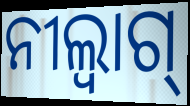
ନୀଲ୍ବାଗ୍